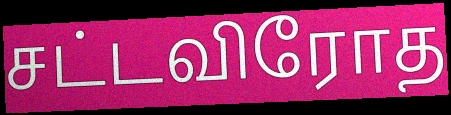
சட்டவிரோத